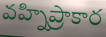
వహ్నిప్రాకార